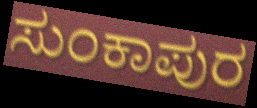
ಸುಂಕಾಪುರ